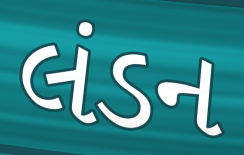
લંડન